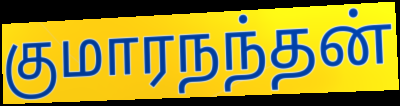
குமாரநந்தன்